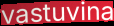
vastuvina